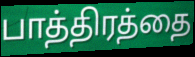
பாத்திரத்தை